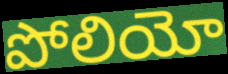
పోలియో